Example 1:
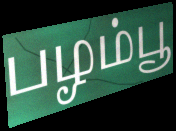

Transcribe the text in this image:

பழம்பூ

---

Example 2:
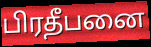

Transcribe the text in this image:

பிரதீபனை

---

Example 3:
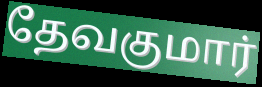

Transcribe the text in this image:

தேவகுமார்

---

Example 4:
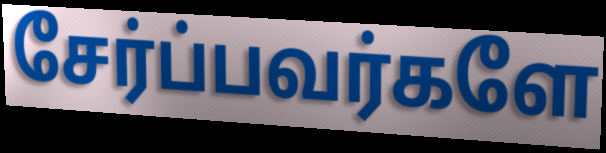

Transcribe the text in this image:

சேர்ப்பவர்களே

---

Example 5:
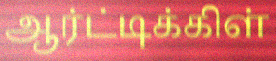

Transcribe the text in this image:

ஆர்ட்டிக்கிள்